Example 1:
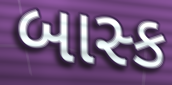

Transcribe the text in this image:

બાસ્ક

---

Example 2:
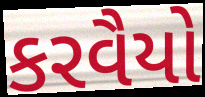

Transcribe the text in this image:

કરવૈયો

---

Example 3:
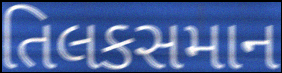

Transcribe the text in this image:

તિલકસમાન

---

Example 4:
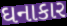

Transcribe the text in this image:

ઘનાકાર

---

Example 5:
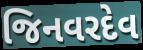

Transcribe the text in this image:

જિનવરદેવ